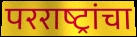
परराष्ट्रांचा